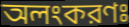
অলংকরণঃ